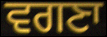
ਵਗਣਾ